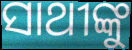
ସାଥୀଙ୍କୁ